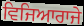
ਵਿਜਿਆਰਾਜੇ